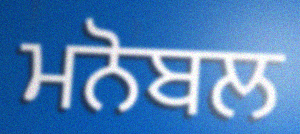
ਮਨੋਬਲ